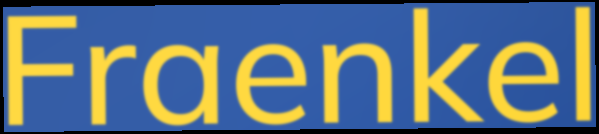
Fraenkel